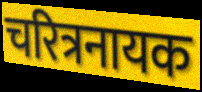
चरित्रनायक